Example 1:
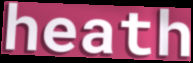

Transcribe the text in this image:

heath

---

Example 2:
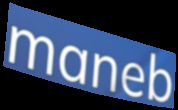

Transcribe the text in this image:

maneb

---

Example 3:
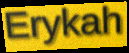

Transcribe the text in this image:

Erykah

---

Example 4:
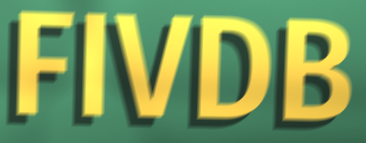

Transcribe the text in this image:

FIVDB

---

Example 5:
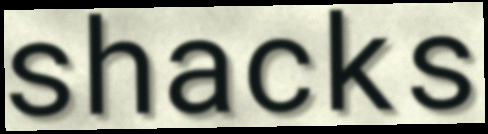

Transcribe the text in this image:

shacks